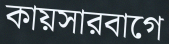
কায়সারবাগে